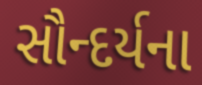
સૌન્દર્યના